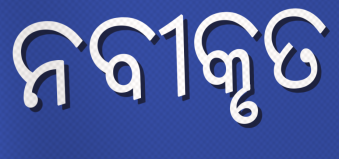
ନବୀକୃତ